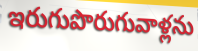
ఇరుగుపొరుగువాళ్లను